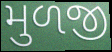
મુળજી